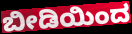
ಬೀಡಿಯಿಂದ